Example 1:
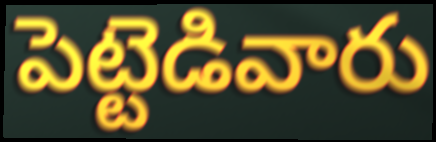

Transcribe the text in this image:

పెట్టెడివారు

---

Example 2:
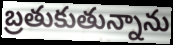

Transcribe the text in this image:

బ్రతుకుతున్నాను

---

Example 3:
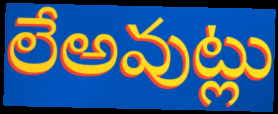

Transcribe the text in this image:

లేఅవుట్లు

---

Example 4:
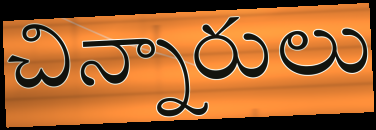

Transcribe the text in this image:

చిన్నారులు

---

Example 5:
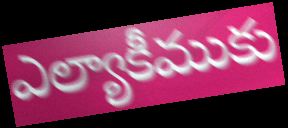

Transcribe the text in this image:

ఎల్యాకీముకు